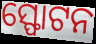
ସ୍ଫୋଟନ